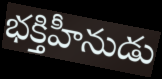
భక్తిహీనుడు